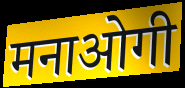
मनाओगी